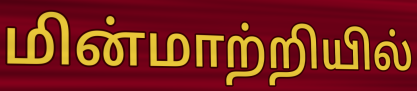
மின்மாற்றியில்